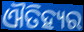
ଐତିହ୍ୟର